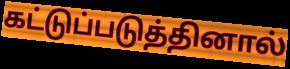
கட்டுப்படுத்தினால்